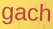
gach